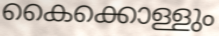
കൈക്കൊള്ളും